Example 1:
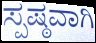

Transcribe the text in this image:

ಸ್ಪಷ್ಠವಾಗಿ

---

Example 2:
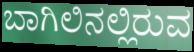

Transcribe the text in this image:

ಬಾಗಿಲಿನಲ್ಲಿರುವ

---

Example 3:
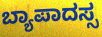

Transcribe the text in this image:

ಬ್ಯಾಪಾದಸ್ಸ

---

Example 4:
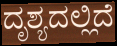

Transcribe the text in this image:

ದೃಶ್ಯದಲ್ಲಿದೆ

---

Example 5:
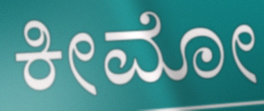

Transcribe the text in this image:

ಕೀಮೋ